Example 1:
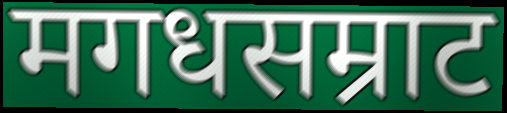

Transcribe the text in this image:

मगधसम्राट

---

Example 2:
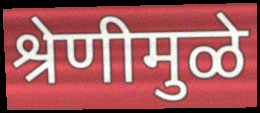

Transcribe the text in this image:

श्रेणीमुळे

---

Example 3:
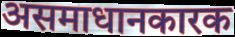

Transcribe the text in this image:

असमाधानकारक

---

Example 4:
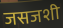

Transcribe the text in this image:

जसजशी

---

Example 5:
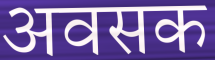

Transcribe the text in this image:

अवसक